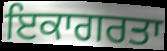
ਇਕਾਗਰਤਾ